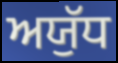
ਅਯੁੱਧ